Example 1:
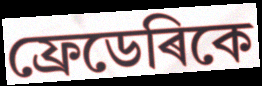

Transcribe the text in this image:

ফ্ৰেডেৰিকে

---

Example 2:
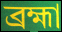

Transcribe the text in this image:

ব্ৰহ্মা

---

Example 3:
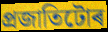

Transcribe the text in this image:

প্ৰজাতিটোৰ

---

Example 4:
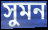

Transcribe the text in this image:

সুমন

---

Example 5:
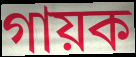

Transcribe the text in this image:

গায়ক